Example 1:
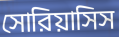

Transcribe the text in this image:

সোরিয়াসিস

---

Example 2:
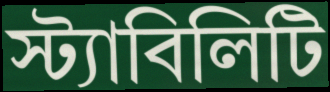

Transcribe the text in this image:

স্ট্যাবিলিটি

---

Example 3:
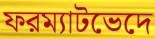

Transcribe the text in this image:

ফরম্যাটভেদে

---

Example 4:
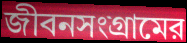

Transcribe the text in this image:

জীবনসংগ্রামের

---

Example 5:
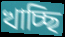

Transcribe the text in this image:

খাচ্ছি